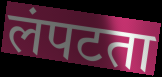
लंपटता